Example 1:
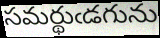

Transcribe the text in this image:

సమర్థుఁడగును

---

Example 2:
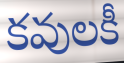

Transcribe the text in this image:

కవులకీ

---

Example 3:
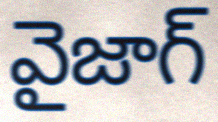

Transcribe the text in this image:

వైజాగ్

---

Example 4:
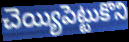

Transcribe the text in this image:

చెయ్యిపెట్టుకొని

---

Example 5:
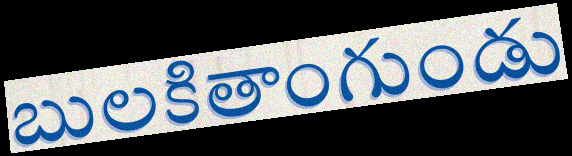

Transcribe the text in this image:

బులకితాంగుండు